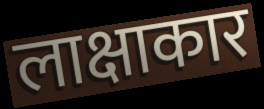
लाक्षाकार